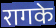
रागके